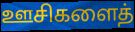
ஊசிகளைத்